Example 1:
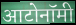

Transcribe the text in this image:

आटोनॉमी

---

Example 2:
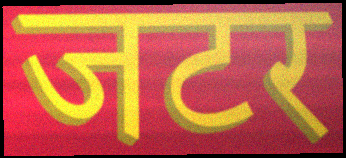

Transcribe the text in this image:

जटर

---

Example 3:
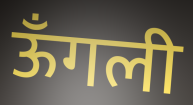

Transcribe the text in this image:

ऊँगली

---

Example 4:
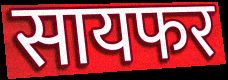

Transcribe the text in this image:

सायफर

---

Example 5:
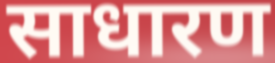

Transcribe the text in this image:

साधारण